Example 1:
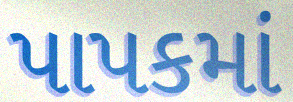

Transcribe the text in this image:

પાપકમાં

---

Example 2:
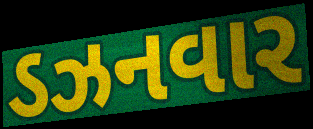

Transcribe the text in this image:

ડઝનવાર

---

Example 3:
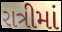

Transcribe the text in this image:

રાત્રીમાં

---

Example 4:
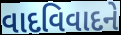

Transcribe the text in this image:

વાદવિવાદને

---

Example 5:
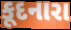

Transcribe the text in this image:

કૂદનારા